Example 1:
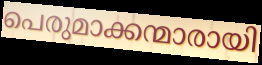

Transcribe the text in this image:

പെരുമാക്കന്മാരായി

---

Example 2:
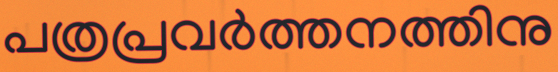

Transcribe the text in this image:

പത്രപ്രവർത്തനത്തിനു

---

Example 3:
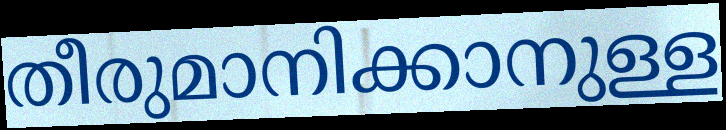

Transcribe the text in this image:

തീരുമാനിക്കാനുള്ള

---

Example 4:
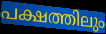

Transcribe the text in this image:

പക്ഷത്തിലും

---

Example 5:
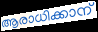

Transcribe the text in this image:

ആരാധിക്കാന്